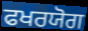
ਫਖਰਯੋਗ